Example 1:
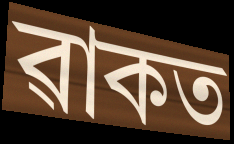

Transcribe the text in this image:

ৱাকত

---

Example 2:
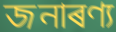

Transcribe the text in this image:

জনাৰণ্য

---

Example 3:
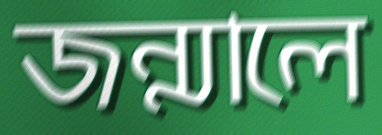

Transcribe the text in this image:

জন্মালে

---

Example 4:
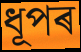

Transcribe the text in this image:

ধূপৰ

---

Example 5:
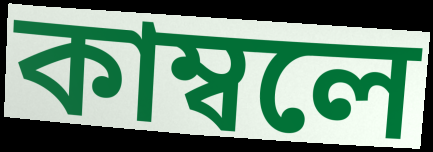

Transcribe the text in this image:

কাম্বলে